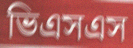
ভিএসএস